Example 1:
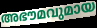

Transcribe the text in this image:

അഭൗമവുമായ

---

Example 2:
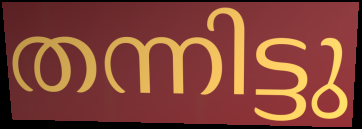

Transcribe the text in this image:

തന്നിട്ടു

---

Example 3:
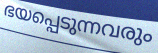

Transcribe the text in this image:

ഭയപ്പെടുന്നവരും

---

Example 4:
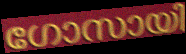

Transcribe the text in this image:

ഗോസായി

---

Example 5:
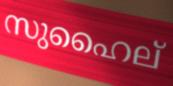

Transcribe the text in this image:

സുഹൈല്